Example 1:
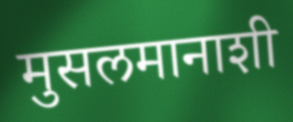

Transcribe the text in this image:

मुसलमानाशी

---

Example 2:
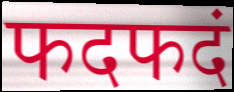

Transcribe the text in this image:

फदफदं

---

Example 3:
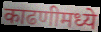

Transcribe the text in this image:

काढणीमध्ये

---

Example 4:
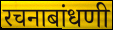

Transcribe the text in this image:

रचनाबांधणी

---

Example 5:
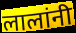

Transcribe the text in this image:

लालांनी